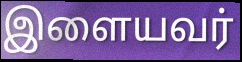
இளையவர்